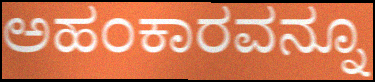
ಅಹಂಕಾರವನ್ನೂ